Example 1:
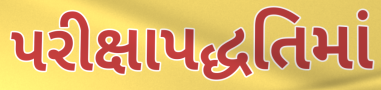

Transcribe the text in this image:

પરીક્ષાપદ્ધતિમાં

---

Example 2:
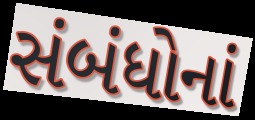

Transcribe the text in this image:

સંબંધોનાં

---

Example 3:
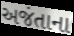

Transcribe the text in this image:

અજંતાના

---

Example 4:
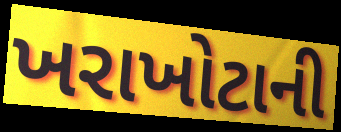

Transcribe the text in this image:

ખરાખોટાની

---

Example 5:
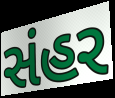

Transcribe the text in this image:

સંહર